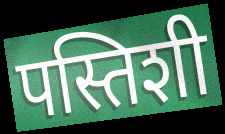
पस्तिशी